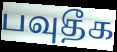
பவுதீக